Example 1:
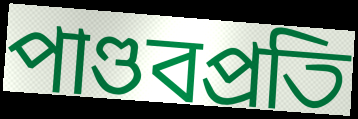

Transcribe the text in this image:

পাণ্ডবপ্রতি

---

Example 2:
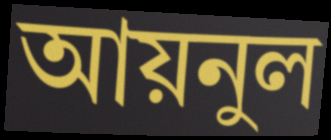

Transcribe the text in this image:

আয়নুল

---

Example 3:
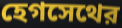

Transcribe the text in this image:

হেগসেথের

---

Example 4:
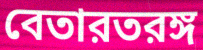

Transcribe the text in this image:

বেতারতরঙ্গ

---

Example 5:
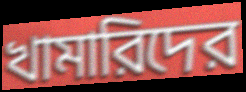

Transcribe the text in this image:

খামারিদের